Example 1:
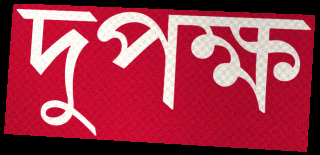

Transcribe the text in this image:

দুপক্ষ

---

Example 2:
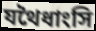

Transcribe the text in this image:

যথৈধাংসি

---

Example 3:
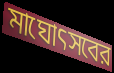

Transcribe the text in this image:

মাঘোৎসবের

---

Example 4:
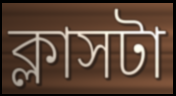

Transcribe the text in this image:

ক্লাসটা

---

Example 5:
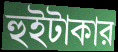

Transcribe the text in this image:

হুইটাকার